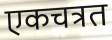
एकचत्रत